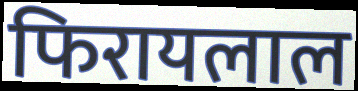
फिरायलाल